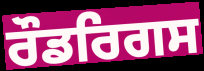
ਰੌਡਰਿਗਸ